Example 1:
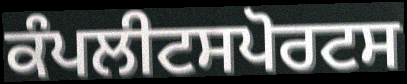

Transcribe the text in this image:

ਕੰਪਲੀਟਸਪੋਰਟਸ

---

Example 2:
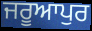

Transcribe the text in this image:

ਜਰੂਆਪੁਰ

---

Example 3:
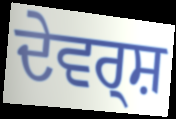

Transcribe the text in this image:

ਦੇਵਰ੍ਸ਼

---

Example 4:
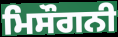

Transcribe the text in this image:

ਮਿਸੌਗਨੀ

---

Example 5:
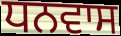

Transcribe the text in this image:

ਧਨਵਾਸ